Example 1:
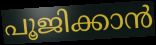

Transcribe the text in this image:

പൂജിക്കാൻ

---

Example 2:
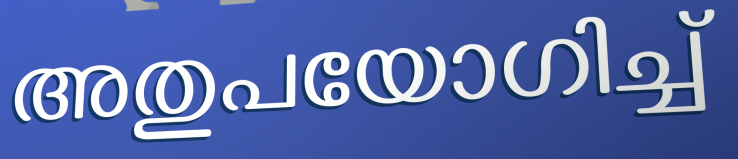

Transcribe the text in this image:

അതുപയോഗിച്ച്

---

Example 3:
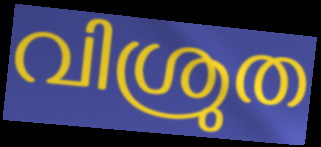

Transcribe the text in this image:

വിശ്രുത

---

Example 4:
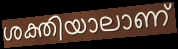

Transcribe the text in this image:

ശക്തിയാലാണ്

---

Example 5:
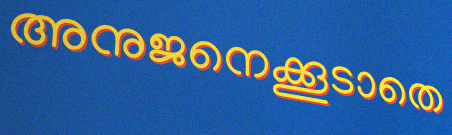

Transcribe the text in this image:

അനുജനെക്കൂടാതെ